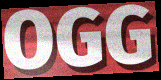
OGG